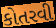
કોતરવી